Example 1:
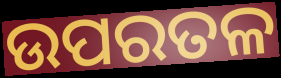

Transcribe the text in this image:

ଉପରତଳ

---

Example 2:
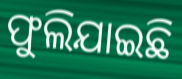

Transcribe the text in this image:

ଫୁଲିଯାଇଛି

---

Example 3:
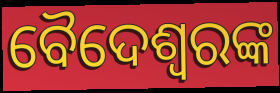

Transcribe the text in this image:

ବୈଦେଶ୍ୱରଙ୍କ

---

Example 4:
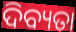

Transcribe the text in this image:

ଦିବ୍ୟତା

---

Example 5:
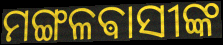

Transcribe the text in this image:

ମଙ୍ଗଳଵାସୀଙ୍କ